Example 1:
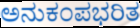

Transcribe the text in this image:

ಅನುಕಂಪಭರಿತ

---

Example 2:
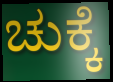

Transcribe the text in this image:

ಚುಕ್ಕೆ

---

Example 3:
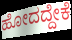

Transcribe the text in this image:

ಹೋದದ್ದೇಕೆ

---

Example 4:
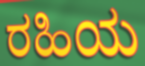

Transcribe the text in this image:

ರಹಿಯ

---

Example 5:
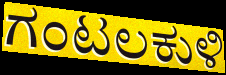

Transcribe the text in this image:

ಗಂಟಲಕುಳಿ